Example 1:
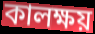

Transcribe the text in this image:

কালক্ষয়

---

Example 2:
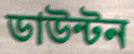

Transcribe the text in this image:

ডাউন্টন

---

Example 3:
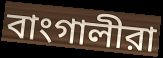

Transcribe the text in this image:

বাংগালীরা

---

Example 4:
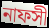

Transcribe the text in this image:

নাফসী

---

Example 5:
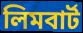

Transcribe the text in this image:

লিমবার্ট